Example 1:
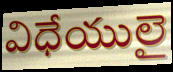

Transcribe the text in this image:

విధేయులై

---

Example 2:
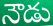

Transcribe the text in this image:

నౌడు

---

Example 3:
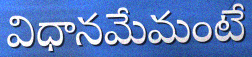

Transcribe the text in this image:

విధానమేమంటే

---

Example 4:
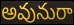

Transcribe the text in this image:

అవునురా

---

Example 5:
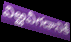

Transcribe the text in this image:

విఱ్ఱవీగడానికీ